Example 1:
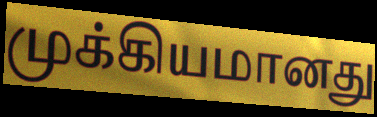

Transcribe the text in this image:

முக்கியமானது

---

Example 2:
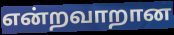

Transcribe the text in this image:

என்றவாறான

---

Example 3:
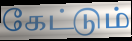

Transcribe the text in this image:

கேட்டும்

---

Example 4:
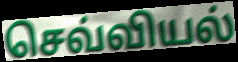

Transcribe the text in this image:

செவ்வியல்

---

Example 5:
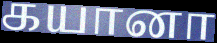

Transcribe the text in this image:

கயானா